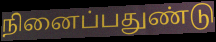
நினைப்பதுண்டு